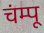
चंम्पू